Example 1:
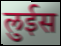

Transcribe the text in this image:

लुईस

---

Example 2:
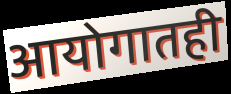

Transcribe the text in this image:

आयोगातही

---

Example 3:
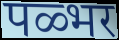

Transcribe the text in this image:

पळ्भर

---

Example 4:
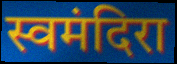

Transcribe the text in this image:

स्वमंदिरा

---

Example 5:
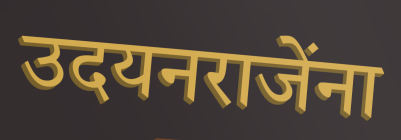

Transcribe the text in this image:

उदयनराजेंना